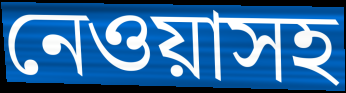
নেওয়াসহ